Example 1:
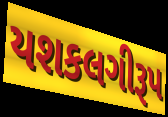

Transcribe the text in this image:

યશકલગીરૂપ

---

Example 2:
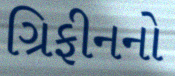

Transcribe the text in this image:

ગ્રિફીનનો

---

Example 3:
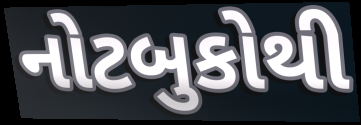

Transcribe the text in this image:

નોટબુકોથી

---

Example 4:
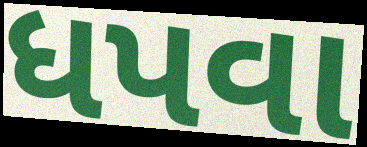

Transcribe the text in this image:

ધપવા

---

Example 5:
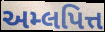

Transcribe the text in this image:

અમ્લપિત્ત